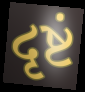
દૃષ્ટં